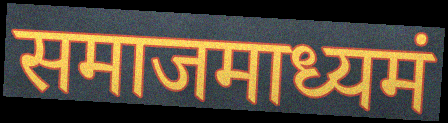
समाजमाध्यमं